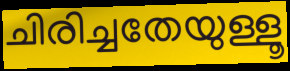
ചിരിച്ചതേയുള്ളൂ